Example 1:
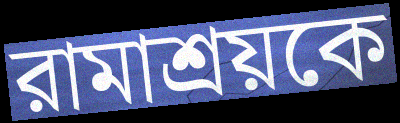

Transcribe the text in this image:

রামাশ্রয়কে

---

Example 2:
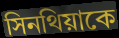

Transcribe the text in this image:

সিনথিয়াকে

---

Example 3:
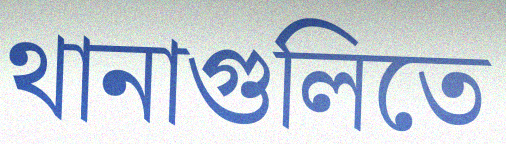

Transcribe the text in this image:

থানাগুলিতে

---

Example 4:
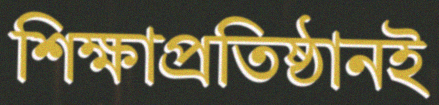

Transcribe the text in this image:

শিক্ষাপ্রতিষ্ঠানই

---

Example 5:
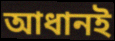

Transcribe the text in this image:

আধানই